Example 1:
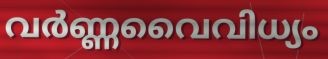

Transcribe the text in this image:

വർണ്ണവൈവിധ്യം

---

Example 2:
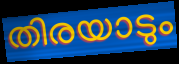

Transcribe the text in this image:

തിരയാടും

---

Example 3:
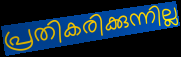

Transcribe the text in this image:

പ്രതികരിക്കുന്നില്ല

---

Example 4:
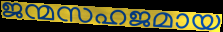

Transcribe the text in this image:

ജന്മസഹജമായ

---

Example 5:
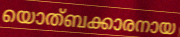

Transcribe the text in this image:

യൊത്ബക്കാരനായ